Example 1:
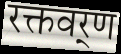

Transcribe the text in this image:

रक्तवर्ण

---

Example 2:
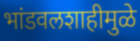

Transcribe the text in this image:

भांडवलशाहीमुळे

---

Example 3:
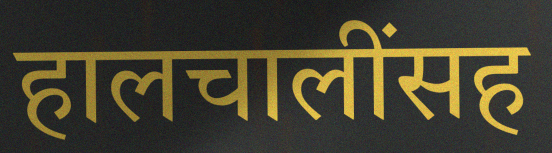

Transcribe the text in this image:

हालचालींसह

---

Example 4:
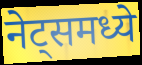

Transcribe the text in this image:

नेट्समध्ये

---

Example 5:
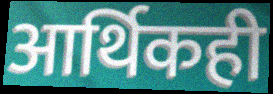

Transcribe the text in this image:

आर्थिकही